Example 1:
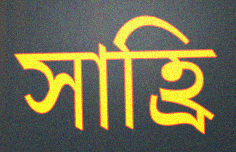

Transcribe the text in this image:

সাহ্রি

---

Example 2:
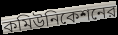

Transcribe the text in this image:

কমিউনিকেশনের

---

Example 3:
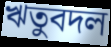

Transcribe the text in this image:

ঋতুবদল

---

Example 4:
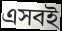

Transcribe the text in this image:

এসবই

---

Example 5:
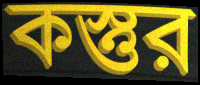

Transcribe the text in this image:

কস্তুর